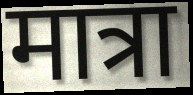
मात्रा